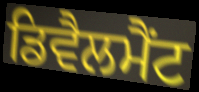
ਡਿਵੈਲਮੈਂਟ